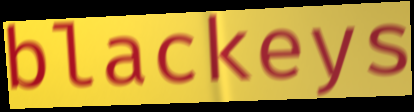
blackeys